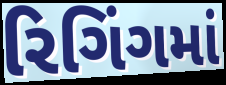
રિગિંગમાં